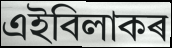
এইবিলাকৰ